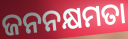
ଜନନକ୍ଷମତା